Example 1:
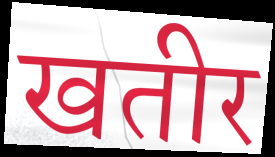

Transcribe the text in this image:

खतीर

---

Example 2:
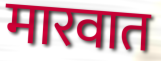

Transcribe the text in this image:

मारवात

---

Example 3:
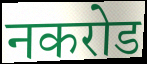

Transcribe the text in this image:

नकरोड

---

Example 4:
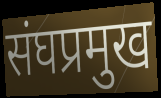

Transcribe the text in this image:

संघप्रमुख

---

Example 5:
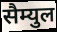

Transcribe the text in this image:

सैम्युल